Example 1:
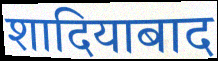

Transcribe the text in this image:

शादियाबाद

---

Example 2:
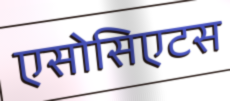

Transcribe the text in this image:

एसोसिएटस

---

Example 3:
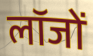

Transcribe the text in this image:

लॉजों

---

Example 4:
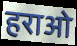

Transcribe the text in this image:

हराओ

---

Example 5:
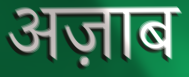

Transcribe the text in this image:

अज़ाब